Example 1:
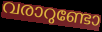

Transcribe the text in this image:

വരാറുണ്ടോ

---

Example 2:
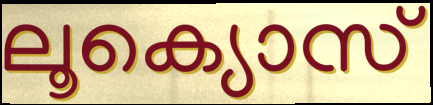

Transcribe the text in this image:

ലൂക്യൊസ്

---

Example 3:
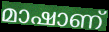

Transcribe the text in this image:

മാഷാണ്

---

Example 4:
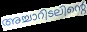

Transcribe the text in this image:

അച്ചാറിടലിന്റെ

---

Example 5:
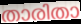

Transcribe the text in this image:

താരിതാ